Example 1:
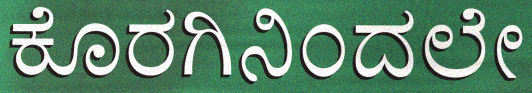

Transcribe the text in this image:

ಕೊರಗಿನಿಂದಲೇ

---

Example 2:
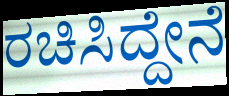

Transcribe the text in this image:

ರಚಿಸಿದ್ದೇನೆ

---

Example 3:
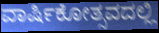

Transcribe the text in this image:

ವಾರ್ಷಿಕೋತ್ಸವದಲ್ಲಿ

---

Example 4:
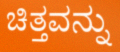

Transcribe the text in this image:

ಚಿತ್ತವನ್ನು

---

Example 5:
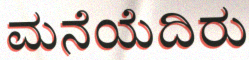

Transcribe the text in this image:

ಮನೆಯೆದಿರು